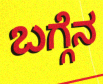
ಬಗ್ಗೆನ